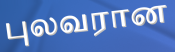
புலவரான